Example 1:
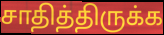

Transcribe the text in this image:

சாதித்திருக்க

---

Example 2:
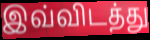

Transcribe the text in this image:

இவ்விடத்து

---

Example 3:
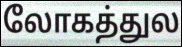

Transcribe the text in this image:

லோகத்துல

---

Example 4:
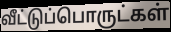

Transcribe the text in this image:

வீட்டுப்பொருட்கள்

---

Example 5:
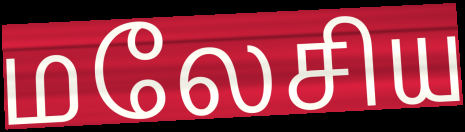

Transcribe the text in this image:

மலேசிய